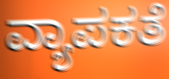
ವ್ಯಾಪಕತೆ